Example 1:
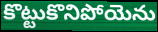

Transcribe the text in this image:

కొట్టుకొనిపోయెను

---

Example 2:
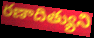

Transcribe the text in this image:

రణాదిత్యుని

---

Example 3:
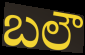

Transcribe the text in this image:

బలౌ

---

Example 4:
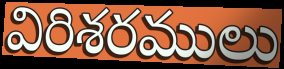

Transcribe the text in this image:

విరిశరములు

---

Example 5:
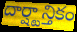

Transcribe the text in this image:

దార్ష్టాన్తికం